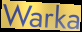
Warka